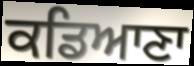
ਕਡਿਆਣਾ